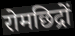
रोमछिद्रों